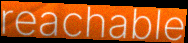
reachable